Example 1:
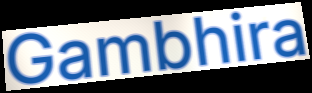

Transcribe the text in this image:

Gambhira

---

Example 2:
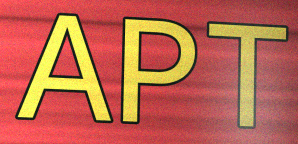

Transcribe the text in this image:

APT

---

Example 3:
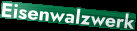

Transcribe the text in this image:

Eisenwalzwerk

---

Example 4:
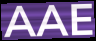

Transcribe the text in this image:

AAE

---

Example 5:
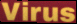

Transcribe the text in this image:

Virus